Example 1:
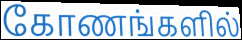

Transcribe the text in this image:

கோணங்களில்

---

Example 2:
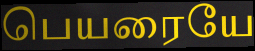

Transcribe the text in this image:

பெயரையே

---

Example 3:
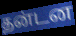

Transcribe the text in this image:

தன்டன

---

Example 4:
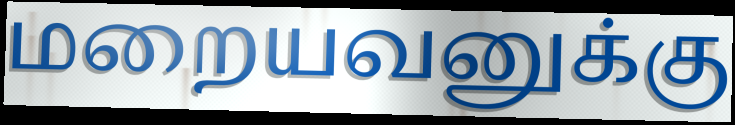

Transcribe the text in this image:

மறையவனுக்கு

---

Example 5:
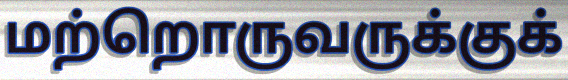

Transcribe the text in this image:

மற்றொருவருக்குக்